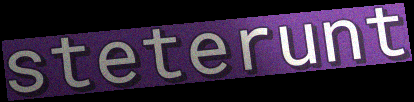
steterunt